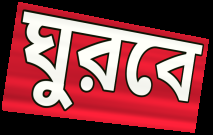
ঘুরবে